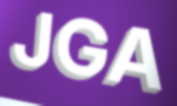
JGA